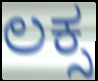
ಲಕ್ಸ